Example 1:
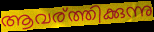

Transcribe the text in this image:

ആവര്ത്തിക്കുന്നു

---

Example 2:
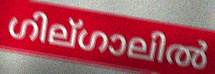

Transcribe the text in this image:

ഗില്ഗാലിൽ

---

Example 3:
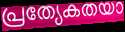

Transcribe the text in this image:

പ്രത്യേകതയാ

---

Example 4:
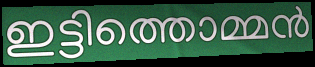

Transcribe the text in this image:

ഇട്ടിത്തൊമ്മൻ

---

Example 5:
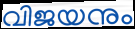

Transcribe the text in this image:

വിജയനും